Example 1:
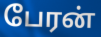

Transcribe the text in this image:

பேரன்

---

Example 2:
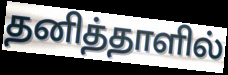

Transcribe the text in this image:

தனித்தாளில்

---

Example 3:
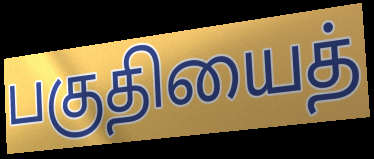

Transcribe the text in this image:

பகுதியைத்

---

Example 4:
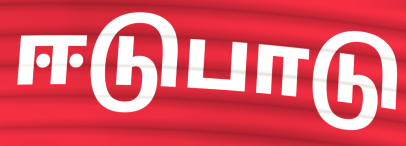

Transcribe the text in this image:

ஈடுபாடு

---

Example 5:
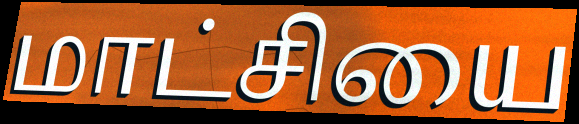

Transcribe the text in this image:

மாட்சியை